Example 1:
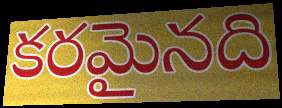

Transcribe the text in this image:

కరమైనది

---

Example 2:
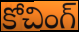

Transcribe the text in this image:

కోచింగ్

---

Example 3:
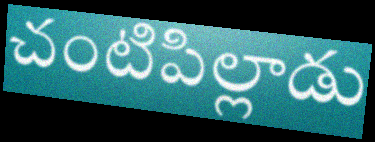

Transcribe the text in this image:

చంటిపిల్లాడు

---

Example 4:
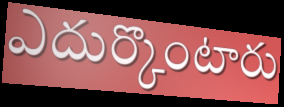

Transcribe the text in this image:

ఎదుర్కొంటారు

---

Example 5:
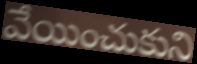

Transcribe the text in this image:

వేయించుకుని